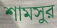
শামসুর